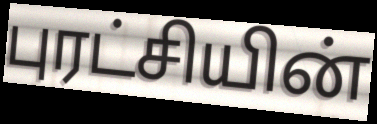
புரட்சியின்